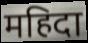
महिदा